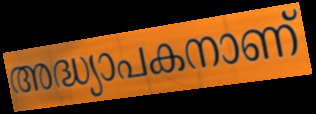
അദ്ധ്യാപകനാണ്